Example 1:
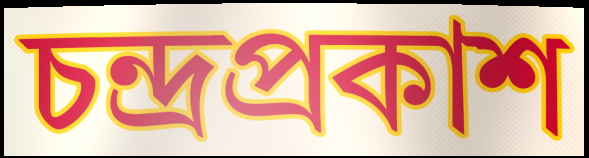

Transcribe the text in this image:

চন্দ্রপ্রকাশ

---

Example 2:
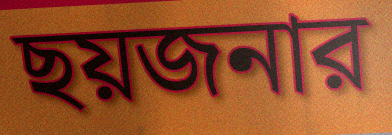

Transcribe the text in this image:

ছয়জনার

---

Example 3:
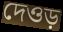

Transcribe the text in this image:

দেওড়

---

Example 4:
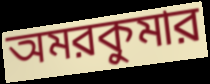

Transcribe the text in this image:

অমরকুমার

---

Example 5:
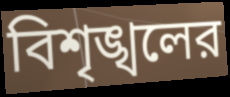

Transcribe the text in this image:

বিশৃঙ্খলের